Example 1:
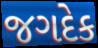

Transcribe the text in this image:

જગદેક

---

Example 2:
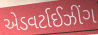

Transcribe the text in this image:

એડવર્ટાઈઝીંગ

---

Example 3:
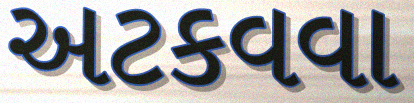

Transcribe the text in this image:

અટકવવા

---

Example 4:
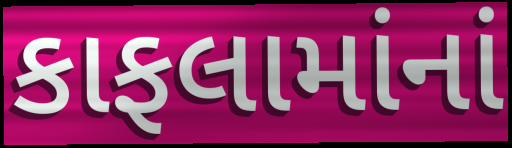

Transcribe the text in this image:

કાફલામાંનાં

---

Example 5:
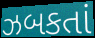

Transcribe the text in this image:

ઝબકતાં